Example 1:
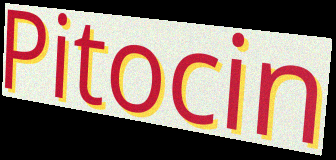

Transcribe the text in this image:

Pitocin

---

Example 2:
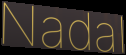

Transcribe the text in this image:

Nadal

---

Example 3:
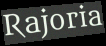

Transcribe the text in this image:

Rajoria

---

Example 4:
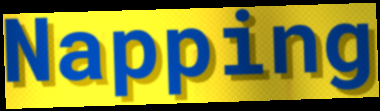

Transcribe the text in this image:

Napping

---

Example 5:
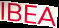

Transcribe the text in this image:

IBEA